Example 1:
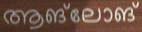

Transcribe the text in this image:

ആങ്‌ലോങ്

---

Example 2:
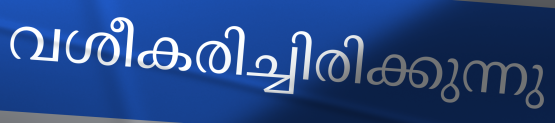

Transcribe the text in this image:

വശീകരിച്ചിരിക്കുന്നു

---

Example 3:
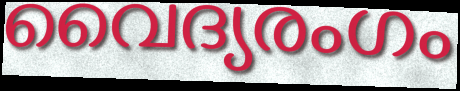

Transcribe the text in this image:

വൈദ്യരംഗം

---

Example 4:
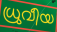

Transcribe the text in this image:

ധ്രുവീയ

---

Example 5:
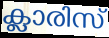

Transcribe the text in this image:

ക്ലാരിസ്